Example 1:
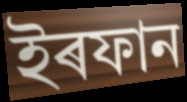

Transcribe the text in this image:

ইৰফান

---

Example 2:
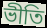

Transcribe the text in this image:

ভীতি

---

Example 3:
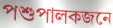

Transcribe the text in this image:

পশুপালকজনে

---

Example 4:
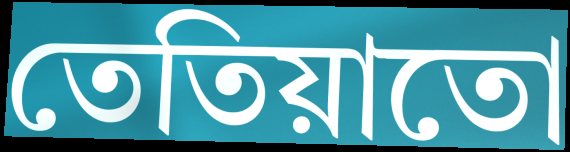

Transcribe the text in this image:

তেতিয়াতো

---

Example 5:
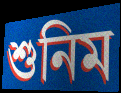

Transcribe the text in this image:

শুনিম